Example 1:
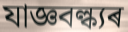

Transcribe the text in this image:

যাজ্ঞবল্ক্যৰ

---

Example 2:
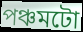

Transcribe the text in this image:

পঞ্চমটো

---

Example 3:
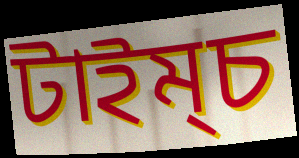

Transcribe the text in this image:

টাইম্‌চ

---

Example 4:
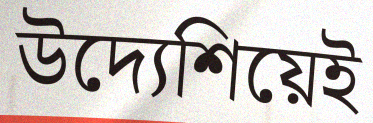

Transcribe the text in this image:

উদ্যেশিয়েই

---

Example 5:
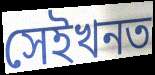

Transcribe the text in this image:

সেইখনত